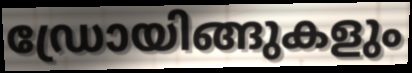
ഡ്രോയിങ്ങുകളും